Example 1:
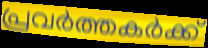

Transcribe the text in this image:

പ്രവർത്തകർക്ക്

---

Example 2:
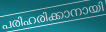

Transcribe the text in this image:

പരിഹരിക്കാനായി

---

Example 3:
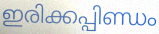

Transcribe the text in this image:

ഇരിക്കപ്പിണ്ഡം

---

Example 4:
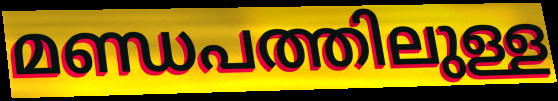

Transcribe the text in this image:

മണ്ഡപത്തിലുള്ള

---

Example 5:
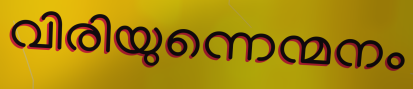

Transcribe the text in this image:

വിരിയുന്നെന്മനം